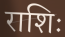
राशिः